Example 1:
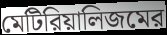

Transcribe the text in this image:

মেটিরিয়ালিজমের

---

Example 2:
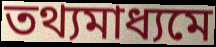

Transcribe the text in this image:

তথ্যমাধ্যমে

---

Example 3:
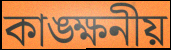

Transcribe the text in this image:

কাঙ্ক্ষনীয়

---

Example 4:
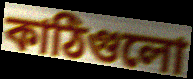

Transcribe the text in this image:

কাঠিগুলো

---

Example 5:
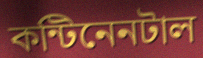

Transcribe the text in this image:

কন্টিনেনটাল